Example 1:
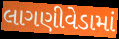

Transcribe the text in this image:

લાગણીવેડામાં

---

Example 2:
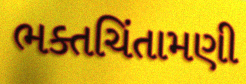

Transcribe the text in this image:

ભક્તચિંતામણી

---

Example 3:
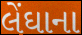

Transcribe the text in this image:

લેંઘાના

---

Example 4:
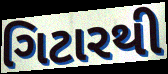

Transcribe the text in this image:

ગિટારથી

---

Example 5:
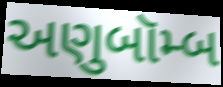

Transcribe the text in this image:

અણુબૉમ્બ